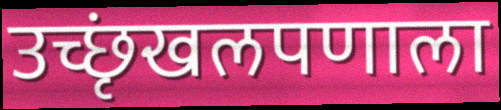
उच्छृंखलपणाला